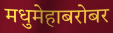
मधुमेहाबरोबर